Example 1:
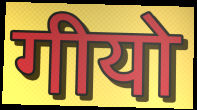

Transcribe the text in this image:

गीयो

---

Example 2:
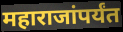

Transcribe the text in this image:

महाराजांपर्यंत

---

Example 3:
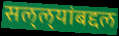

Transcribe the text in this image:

सल्ल्यांबद्दल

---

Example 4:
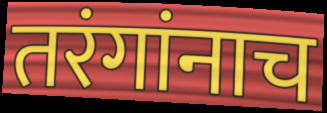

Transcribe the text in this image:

तरंगांनाच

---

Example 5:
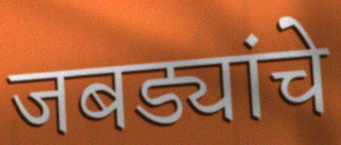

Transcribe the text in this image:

जबड्यांचे